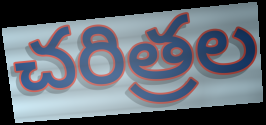
చరిత్రల